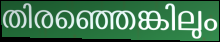
തിരഞ്ഞെങ്കിലും